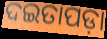
ଦଇତାପଡ଼ା